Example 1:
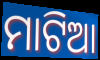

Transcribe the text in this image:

ମାଟିଆ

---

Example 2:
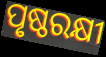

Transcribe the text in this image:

ପୃଷ୍ଠରକ୍ଷୀ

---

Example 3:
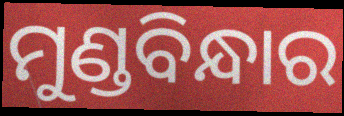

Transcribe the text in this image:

ମୁଣ୍ଡବିନ୍ଧାର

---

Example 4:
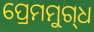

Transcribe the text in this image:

ପ୍ରେମମୁଗ୍‌ଧ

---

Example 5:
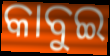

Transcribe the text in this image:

କାବୁଇ